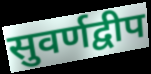
सुवर्णद्वीप